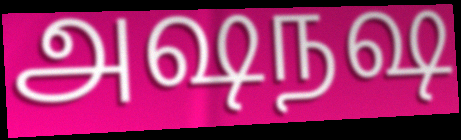
அஷநஷ